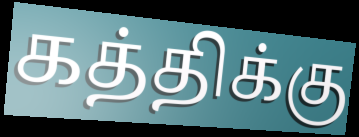
கத்திக்கு